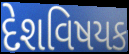
દેશવિષયક